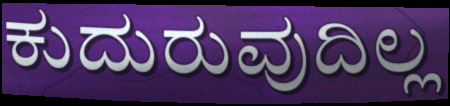
ಕುದುರುವುದಿಲ್ಲ